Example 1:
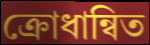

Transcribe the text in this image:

ক্ৰোধান্বিত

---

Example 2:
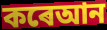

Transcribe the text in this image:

কৰেআন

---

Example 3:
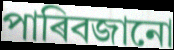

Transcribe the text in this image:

পাৰিবজানো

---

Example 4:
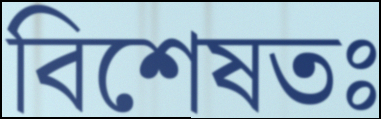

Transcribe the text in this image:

বিশেষতঃ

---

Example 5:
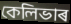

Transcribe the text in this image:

কেলিভাৰ